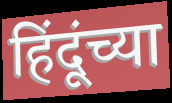
हिंदूंच्या